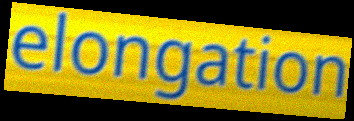
elongation